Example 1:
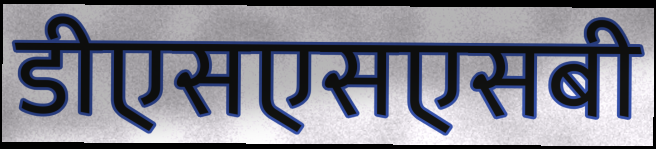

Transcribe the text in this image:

डीएसएसएसबी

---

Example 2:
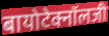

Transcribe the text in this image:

बायोटेक्नॉलजी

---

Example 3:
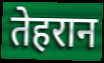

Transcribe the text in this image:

तेहरान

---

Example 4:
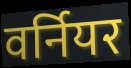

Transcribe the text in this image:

वर्नियर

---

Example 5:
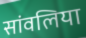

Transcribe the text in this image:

सांवलिया